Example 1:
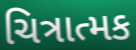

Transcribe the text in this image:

ચિત્રાત્મક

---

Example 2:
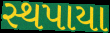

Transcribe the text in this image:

સ્થપાયા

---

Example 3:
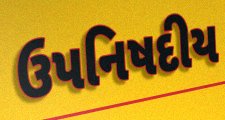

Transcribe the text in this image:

ઉપનિષદીય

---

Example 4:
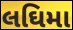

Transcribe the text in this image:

લઘિમા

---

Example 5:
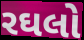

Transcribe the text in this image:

રઘલો